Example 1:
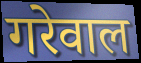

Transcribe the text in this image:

गरेवाल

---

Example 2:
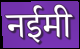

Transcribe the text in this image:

नईमी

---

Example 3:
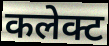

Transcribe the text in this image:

कलेक्ट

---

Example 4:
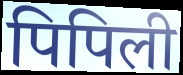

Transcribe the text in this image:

पिपिली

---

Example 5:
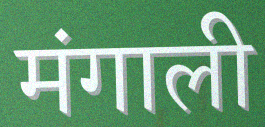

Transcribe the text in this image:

मंगाली